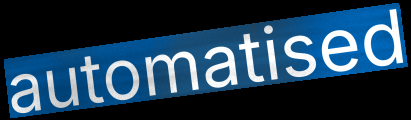
automatised